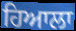
ਹਿਆਲਾ